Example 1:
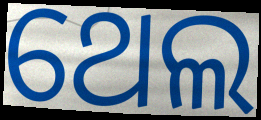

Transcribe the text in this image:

ଥେଲ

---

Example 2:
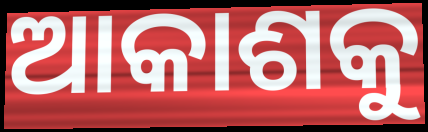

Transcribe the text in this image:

ଆକାଶକୁ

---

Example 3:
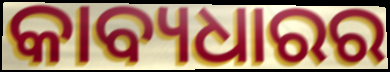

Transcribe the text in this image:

କାବ୍ୟଧାରର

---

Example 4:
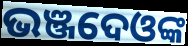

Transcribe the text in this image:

ଭଞ୍ଜଦେଓଙ୍କ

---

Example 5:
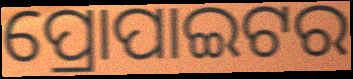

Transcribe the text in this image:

ପ୍ରୋପାଇଟର